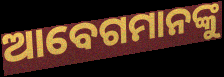
ଆବେଗମାନଙ୍କୁ